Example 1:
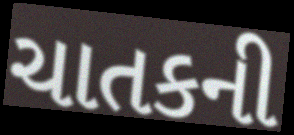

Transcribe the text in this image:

ચાતકની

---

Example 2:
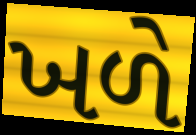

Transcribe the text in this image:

ખળે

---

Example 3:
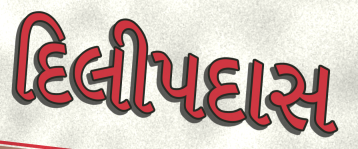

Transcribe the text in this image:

દિલીપદાસ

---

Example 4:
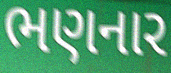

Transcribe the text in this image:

ભણનાર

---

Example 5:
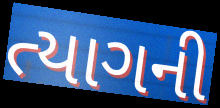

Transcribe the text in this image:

ત્યાગની